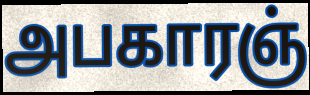
அபகாரஞ்